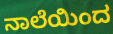
ನಾಲೆಯಿಂದ